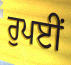
ਰੁਪਈਂ